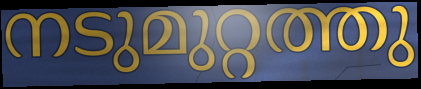
നടുമുറ്റത്തു